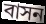
বাসন